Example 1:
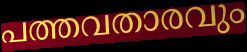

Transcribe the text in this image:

പത്തവതാരവും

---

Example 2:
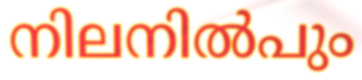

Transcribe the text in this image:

നിലനിൽപും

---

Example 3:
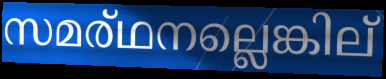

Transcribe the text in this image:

സമര്ഥനല്ലെങ്കില്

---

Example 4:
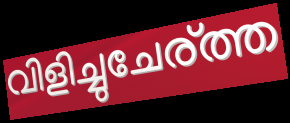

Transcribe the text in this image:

വിളിച്ചുചേര്ത്ത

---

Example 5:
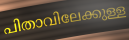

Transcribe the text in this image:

പിതാവിലേക്കുള്ള